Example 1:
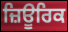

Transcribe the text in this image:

ਜ਼ਿਊਰਿਕ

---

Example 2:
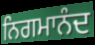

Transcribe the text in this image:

ਨਿਗਮਾਨੰਦ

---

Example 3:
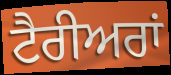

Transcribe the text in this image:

ਟੈਰੀਅਰਾਂ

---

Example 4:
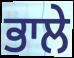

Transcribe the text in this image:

ਭਾਲੇ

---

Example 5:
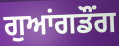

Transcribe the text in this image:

ਗੁਆਂਗਡੌਂਗ